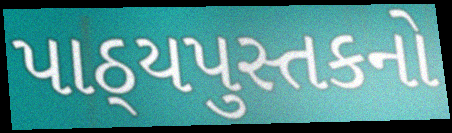
પાઠ્યપુસ્તકનો